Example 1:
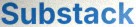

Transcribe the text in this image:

Substack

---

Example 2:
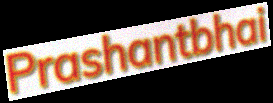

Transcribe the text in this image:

Prashantbhai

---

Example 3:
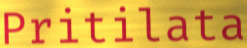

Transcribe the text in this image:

Pritilata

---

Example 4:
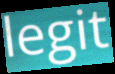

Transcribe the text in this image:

legit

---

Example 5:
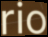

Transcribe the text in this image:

rio